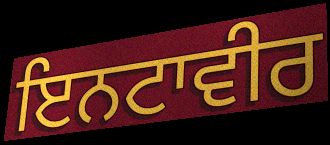
ਇਨਟਾਵੀਰ